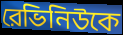
রেভিনিউকে